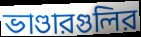
ভাণ্ডারগুলির